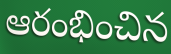
ఆరంభించిన